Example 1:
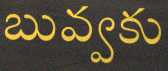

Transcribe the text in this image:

బువ్వకు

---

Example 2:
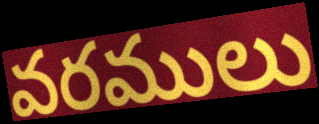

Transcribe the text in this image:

వరములు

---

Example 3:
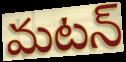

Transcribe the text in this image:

మటన్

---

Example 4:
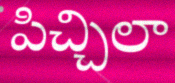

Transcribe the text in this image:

పిచ్చిలా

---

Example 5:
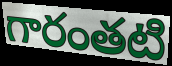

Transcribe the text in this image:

గారంతటి